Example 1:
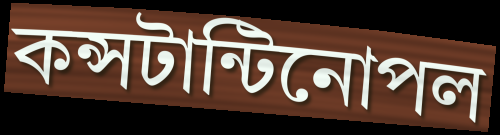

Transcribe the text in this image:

কন্সটান্টিনোপল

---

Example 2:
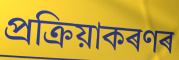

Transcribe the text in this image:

প্ৰক্ৰিয়াকৰণৰ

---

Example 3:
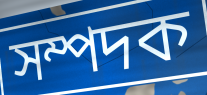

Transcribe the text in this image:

সম্পদক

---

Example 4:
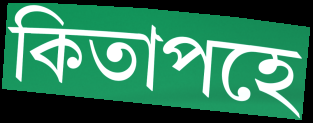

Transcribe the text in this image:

কিতাপহে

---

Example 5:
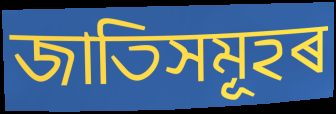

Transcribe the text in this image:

জাতিসমূহৰ